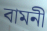
বামনী